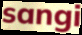
sangi